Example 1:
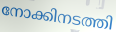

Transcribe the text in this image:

നോക്കിനടത്തി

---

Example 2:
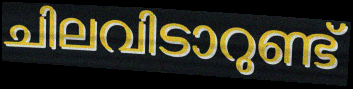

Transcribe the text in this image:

ചിലവിടാറുണ്ട്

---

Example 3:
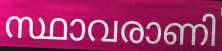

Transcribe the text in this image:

സ്ഥാവരാണി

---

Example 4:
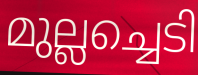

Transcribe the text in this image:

മുല്ലച്ചെടി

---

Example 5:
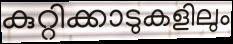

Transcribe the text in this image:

കുറ്റിക്കാടുകളിലും